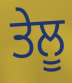
ਤੇਲੂ